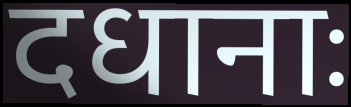
दधानाः